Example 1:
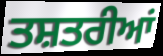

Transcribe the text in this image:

ਤਸ਼ਤਰੀਆਂ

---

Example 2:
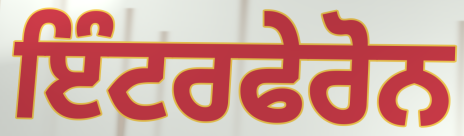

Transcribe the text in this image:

ਇੰਟਰਫੇਰੋਨ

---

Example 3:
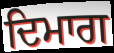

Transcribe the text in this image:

ਦਿਮਾਗ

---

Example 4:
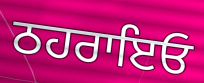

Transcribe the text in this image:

ਠਹਰਾਇਓ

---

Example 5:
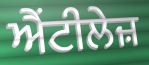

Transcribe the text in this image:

ਐਂਟੀਲੇਜ਼